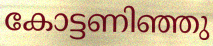
കോട്ടണിഞ്ഞു